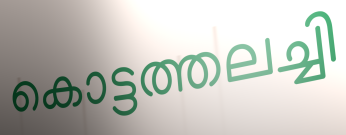
കൊട്ടത്തലച്ചി